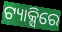
ଟ୍ୟାକ୍ସିରେ